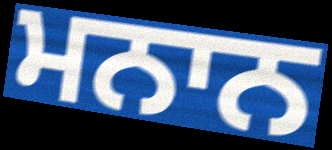
ਮਨਾਨ